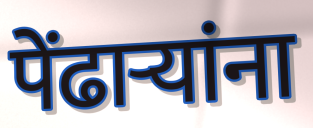
पेंढाऱ्यांना